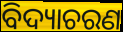
ବିଦ୍ୟାଚରଣ